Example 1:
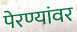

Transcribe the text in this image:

पेरण्यांवर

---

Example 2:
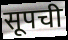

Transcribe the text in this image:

सूपची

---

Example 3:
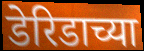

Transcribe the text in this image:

डेरिडाच्या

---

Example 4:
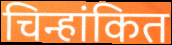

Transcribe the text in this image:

चिन्हांकित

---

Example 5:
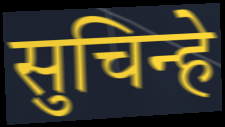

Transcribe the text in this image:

सुचिन्हे